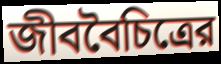
জীববৈচিত্রের